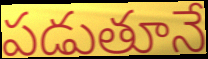
పడుతూనే